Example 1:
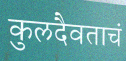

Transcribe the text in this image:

कुलदैवताचं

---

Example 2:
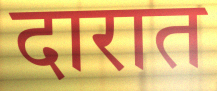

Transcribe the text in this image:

दारात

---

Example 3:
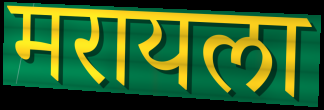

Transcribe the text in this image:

मरायला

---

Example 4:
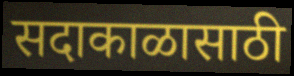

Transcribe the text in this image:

सदाकाळासाठी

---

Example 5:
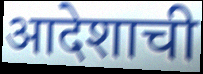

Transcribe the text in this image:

आदेशाची